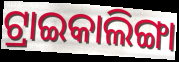
ଟ୍ରାଇକାଲିଙ୍ଗା